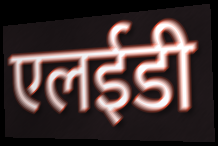
एलईडी